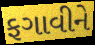
ફગાવીને